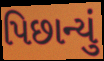
પિછાન્યું